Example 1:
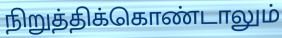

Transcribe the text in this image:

நிறுத்திக்கொண்டாலும்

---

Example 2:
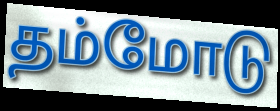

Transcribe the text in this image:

தம்மோடு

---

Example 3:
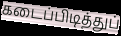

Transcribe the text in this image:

கடைப்பிடித்துப்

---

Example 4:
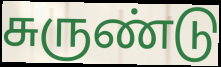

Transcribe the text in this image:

சுருண்டு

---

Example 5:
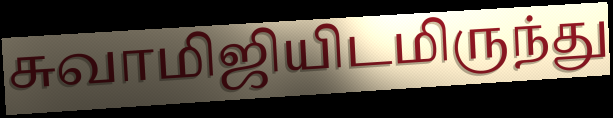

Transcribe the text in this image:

சுவாமிஜியிடமிருந்து